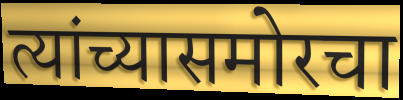
त्यांच्यासमोरचा